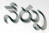
నేర్పు